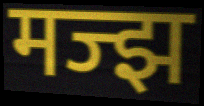
मज्झ